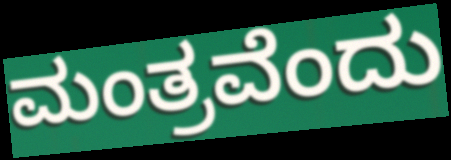
ಮಂತ್ರವೆಂದು